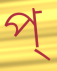
প্